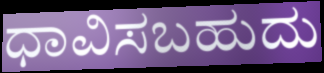
ಧಾವಿಸಬಹುದು